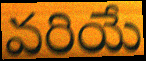
వరియే